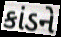
કાંડને